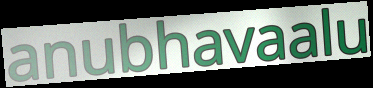
anubhavaalu